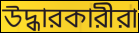
উদ্ধারকারীরা